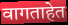
वागताहेत